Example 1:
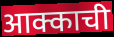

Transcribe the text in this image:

आक्काची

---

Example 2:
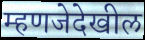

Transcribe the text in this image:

म्हणजेदेखील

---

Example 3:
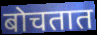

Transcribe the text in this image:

बोचतात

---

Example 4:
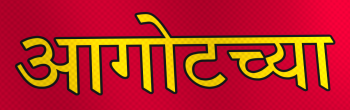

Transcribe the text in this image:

आगोटच्या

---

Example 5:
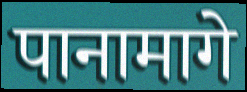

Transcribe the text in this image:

पानामागे